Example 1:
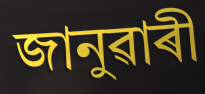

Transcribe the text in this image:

জানুৱাৰী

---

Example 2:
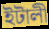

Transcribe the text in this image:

ইটালী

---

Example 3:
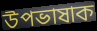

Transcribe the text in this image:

উপভাষাক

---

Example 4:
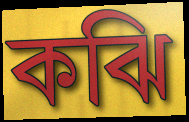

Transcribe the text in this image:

কঝি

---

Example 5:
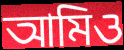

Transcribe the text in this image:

আমিও